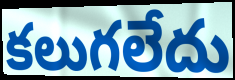
కలుగలేదు